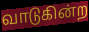
வாடுகின்ற